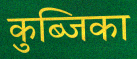
कुब्जिका